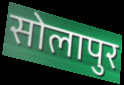
सोलापुर